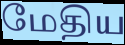
மேதிய